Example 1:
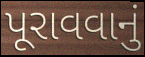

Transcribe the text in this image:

પૂરાવવાનું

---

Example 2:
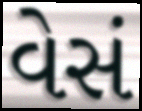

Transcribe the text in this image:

વેસં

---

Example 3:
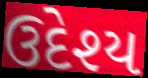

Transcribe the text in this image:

ઉદેશ્ય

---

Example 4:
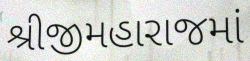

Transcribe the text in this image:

શ્રીજીમહારાજમાં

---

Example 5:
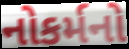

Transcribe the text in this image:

નોકર્મનો